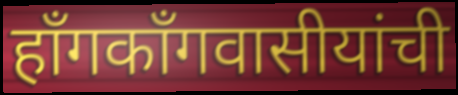
हाँगकाँगवासीयांची